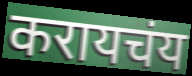
करायचंय